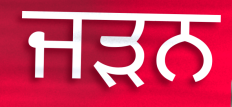
ਜੜਨ